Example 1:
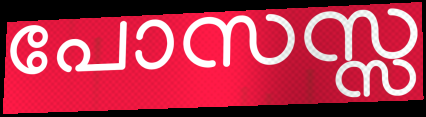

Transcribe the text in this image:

പോസസ്സ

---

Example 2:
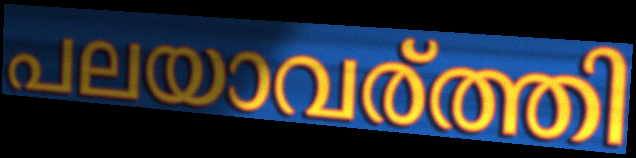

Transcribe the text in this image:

പലയാവര്ത്തി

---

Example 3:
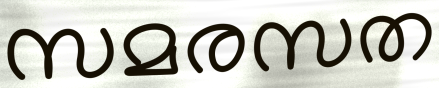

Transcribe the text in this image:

സമരസത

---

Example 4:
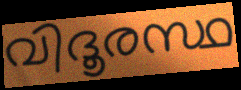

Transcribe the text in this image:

വിദൂരസ്ഥ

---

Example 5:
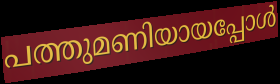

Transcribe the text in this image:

പത്തുമണിയായപ്പോൾ